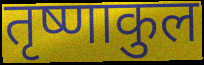
तृष्णाकुल